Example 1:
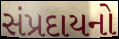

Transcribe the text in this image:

સંપ્રદાયનો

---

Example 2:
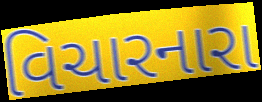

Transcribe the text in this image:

વિચારનારા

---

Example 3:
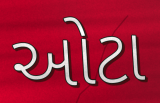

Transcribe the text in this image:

ઓટા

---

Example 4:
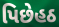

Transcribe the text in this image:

પિછેહઠ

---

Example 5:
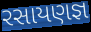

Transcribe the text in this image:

રસાયણજ્ઞ